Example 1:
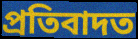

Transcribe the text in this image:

প্ৰতিবাদত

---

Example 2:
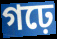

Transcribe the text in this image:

গঢ়ে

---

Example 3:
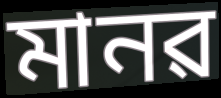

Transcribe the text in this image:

মানৱ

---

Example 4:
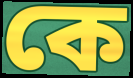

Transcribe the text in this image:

কে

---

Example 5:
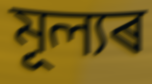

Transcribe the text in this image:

মূল্যৰ